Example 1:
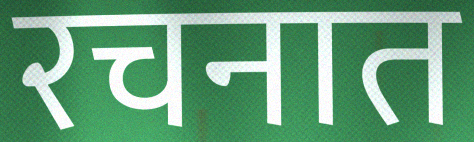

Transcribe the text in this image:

रचनात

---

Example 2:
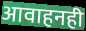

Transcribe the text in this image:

आवाहनही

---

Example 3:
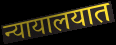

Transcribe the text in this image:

न्यायालयात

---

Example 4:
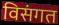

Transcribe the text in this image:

विसंगत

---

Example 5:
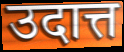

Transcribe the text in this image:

उदात्त